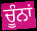
ਚੂੰਨਾਂ